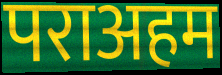
पराअहम